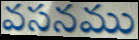
వసనము